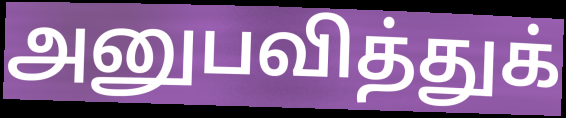
அனுபவித்துக்